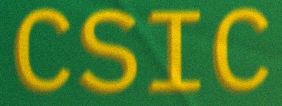
CSIC